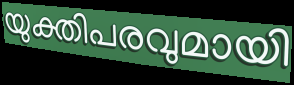
യുക്തിപരവുമായി